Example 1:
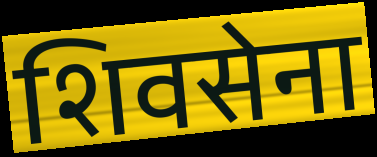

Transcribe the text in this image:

शिवसेना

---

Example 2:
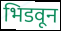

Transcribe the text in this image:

भिडवून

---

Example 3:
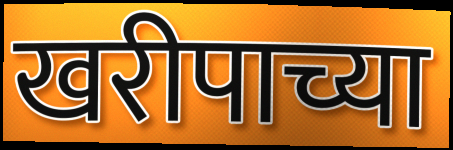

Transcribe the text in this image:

खरीपाच्या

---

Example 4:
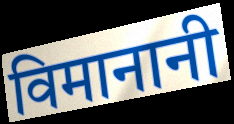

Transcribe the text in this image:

विमानानी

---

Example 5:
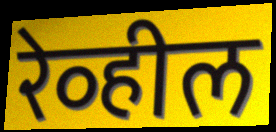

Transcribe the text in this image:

रेव्हील